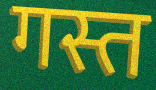
गस्त